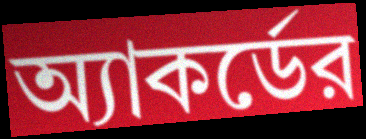
অ্যাকর্ডের